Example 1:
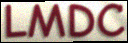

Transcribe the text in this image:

LMDC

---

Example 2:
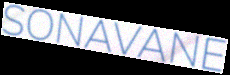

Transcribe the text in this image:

SONAVANE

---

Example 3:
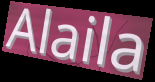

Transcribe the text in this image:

Alaila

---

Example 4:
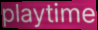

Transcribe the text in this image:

playtime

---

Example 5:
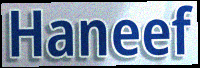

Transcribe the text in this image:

Haneef